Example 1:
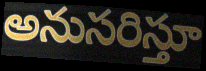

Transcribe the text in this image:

అనుసరిస్తూ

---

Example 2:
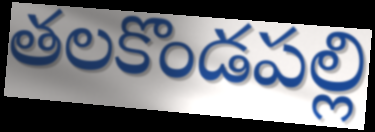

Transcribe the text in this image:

తలకొండపల్లి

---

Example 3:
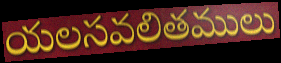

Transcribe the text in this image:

యలసవలితములు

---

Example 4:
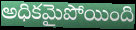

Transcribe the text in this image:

అధికమైపోయింది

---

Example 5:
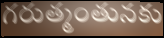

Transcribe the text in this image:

గరుత్మంతునకు